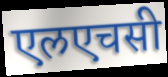
एलएचसी